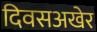
दिवसअखेर